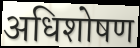
अधिशोषण